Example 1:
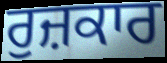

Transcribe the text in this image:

ਰੁਜ਼ਕਾਰ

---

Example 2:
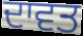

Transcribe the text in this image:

ਦਾਵਤ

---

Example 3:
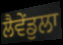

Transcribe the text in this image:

ਲੈਵੇਂਡੁਲਾ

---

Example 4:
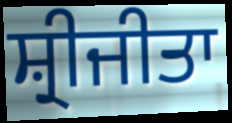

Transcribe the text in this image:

ਸ਼੍ਰੀਜੀਤਾ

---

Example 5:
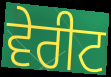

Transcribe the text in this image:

ਵੇਰੀਟ